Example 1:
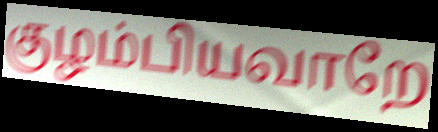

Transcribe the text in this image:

குழம்பியவாறே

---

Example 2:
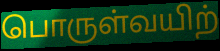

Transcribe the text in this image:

பொருள்வயிற்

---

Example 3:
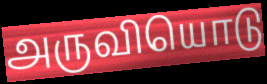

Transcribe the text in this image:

அருவியொடு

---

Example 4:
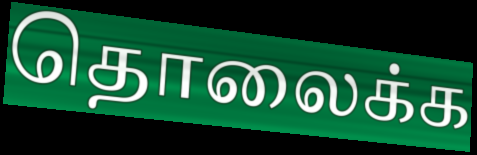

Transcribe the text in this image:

தொலைக்க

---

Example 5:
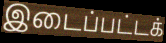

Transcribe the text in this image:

இடைப்பட்டக்